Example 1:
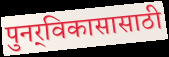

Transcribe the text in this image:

पुनर्विकासासाठी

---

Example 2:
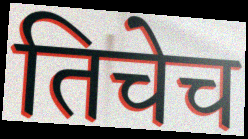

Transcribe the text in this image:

तिचेच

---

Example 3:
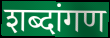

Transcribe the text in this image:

शब्दांगण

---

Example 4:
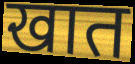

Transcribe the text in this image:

खात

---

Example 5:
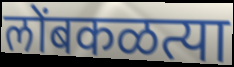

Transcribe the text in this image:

लोंबकळत्या